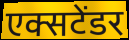
एक्सटेंडर